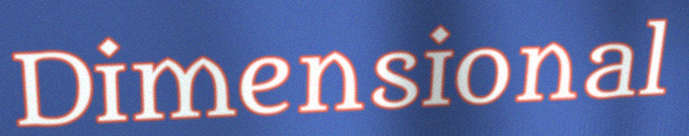
Dimensional